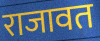
राजावत